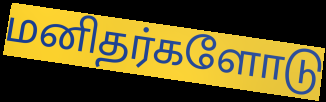
மனிதர்களோடு